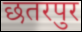
छतरपुर